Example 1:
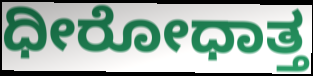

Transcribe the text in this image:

ಧೀರೋಧಾತ್ತ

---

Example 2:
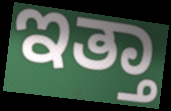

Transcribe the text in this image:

ಇತ್ತಾ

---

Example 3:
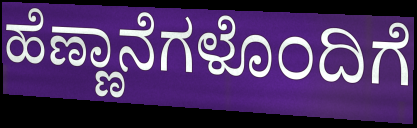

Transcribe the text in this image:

ಹೆಣ್ಣಾನೆಗಳೊಂದಿಗೆ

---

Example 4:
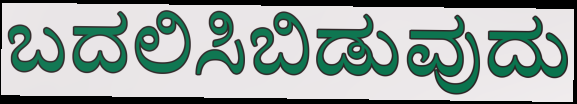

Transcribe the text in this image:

ಬದಲಿಸಿಬಿಡುವುದು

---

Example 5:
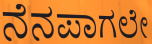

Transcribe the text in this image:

ನೆನಪಾಗಲೇ